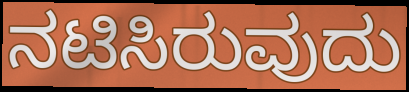
ನಟಿಸಿರುವುದು